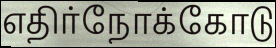
எதிர்நோக்கோடு